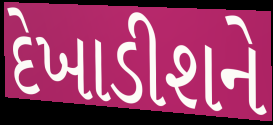
દેખાડીશને